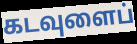
கடவுளைப்